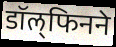
डॉल्फिनने